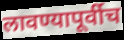
लावण्यापूर्वीच